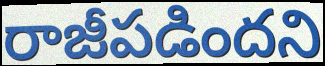
రాజీపడిందని